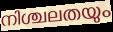
നിശ്ചലതയും